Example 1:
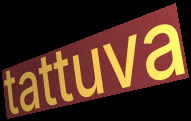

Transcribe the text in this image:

tattuva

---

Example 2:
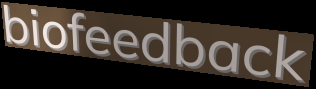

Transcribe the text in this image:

biofeedback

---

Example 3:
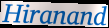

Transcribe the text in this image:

Hiranand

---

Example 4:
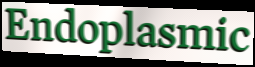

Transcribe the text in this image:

Endoplasmic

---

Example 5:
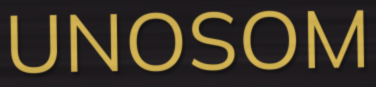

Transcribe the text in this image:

UNOSOM